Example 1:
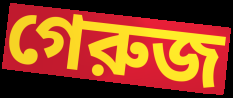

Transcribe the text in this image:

গেরুজ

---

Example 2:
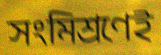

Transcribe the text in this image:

সংমিশ্রণেই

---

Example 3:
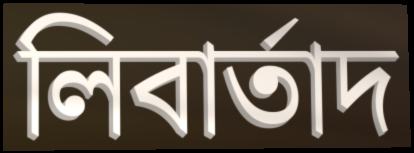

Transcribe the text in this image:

লিবার্তাদ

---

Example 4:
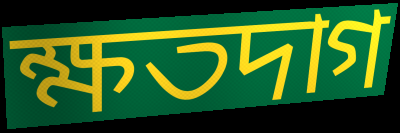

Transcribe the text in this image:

ক্ষতদাগ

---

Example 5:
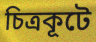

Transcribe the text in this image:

চিত্রকূটে